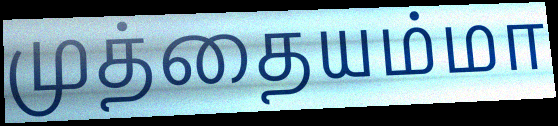
முத்தையம்மா